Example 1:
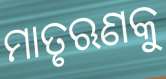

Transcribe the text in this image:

ମାତୃଋଣକୁ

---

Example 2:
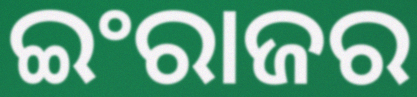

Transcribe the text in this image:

ଇଂରାଜର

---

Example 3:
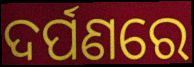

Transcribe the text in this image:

ଦର୍ପଣରେ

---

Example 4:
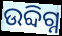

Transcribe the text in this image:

ଉବ୍ଦିଗ୍ନ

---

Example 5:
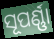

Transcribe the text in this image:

ସୂପର୍ଣ୍ଣା